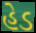
હેડ